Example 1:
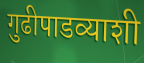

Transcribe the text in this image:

गुढीपाडव्याशी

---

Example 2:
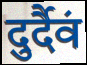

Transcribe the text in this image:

दुर्दैवं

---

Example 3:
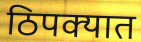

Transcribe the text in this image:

ठिपक्यात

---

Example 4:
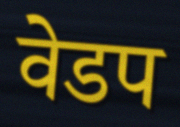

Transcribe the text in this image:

वेडप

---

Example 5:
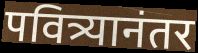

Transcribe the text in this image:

पवित्र्यानंतर